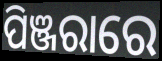
ପିଞ୍ଜରାରେ